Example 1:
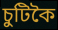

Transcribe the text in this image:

চুটিকৈ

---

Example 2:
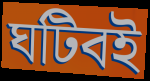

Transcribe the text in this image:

ঘটিবই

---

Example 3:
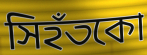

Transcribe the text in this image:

সিহঁতকো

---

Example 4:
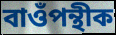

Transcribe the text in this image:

বাওঁপন্থীক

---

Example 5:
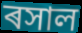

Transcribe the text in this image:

ৰসাল